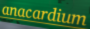
anacardium